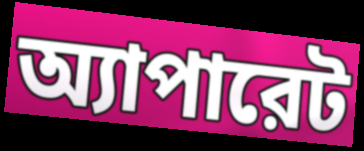
অ্যাপারেট